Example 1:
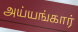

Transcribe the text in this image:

அய்யங்கார்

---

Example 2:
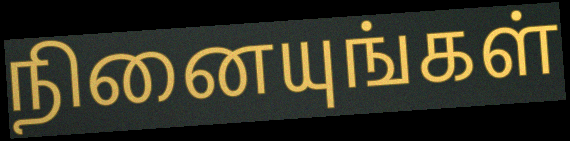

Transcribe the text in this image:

நினையுங்கள்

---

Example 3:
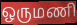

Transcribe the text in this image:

ஒருமணி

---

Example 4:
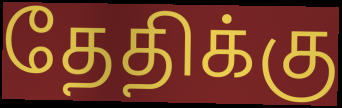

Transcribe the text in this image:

தேதிக்கு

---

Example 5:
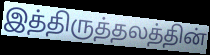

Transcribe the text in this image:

இத்திருத்தலத்தின்